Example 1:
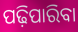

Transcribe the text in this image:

ପଢ଼ିପାରିବା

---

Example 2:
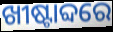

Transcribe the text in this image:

ଖୀଷ୍ଟାବ୍ଦରେ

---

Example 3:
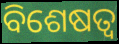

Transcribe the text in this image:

ବିଶେଷତ୍ଵ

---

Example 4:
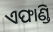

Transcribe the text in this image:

ଏଫାଣ୍ଡି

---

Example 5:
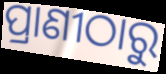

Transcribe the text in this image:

ପ୍ରାଣୀଠାରୁ